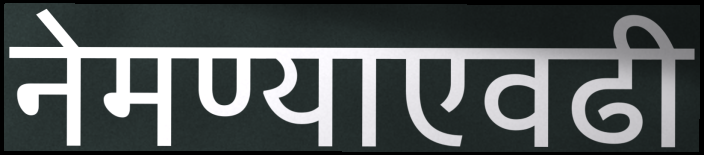
नेमण्याएवढी